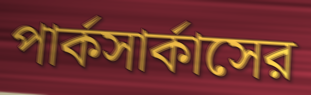
পার্কসার্কাসের